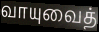
வாயுவைத்